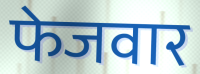
फेजवार